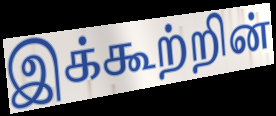
இக்கூற்றின்